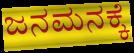
ಜನಮನಕ್ಕೆ